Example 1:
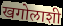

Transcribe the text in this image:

खगोलाशी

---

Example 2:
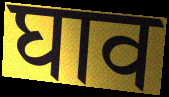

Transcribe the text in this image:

घाव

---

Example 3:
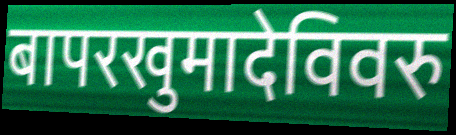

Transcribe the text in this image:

बापरखुमादेविवरु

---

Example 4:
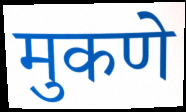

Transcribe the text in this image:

मुकणे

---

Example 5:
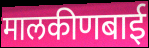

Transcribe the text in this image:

मालकीणबाई